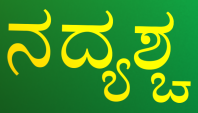
ನದ್ಯಶ್ಚ